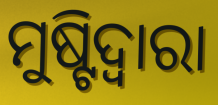
ମୁଷ୍ଟିଦ୍ୱାରା